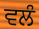
ਵਲੰ